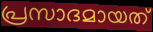
പ്രസാദമായത്